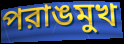
পরাঙমুখ